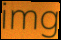
img